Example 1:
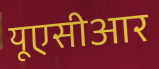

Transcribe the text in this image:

यूएसीआर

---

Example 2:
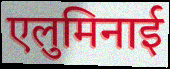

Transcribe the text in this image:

एलुमिनाई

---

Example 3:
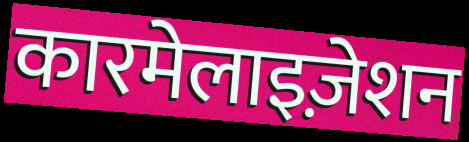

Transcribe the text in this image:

कारमेलाइज़ेशन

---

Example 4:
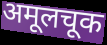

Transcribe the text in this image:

अमूलचूक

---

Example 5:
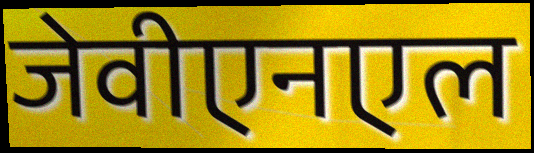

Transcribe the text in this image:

जेवीएनएल